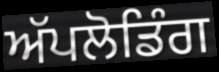
ਅੱਪਲੋਡਿੰਗ